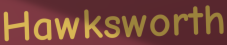
Hawksworth